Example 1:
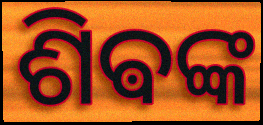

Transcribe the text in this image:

ଶିଵଙ୍କ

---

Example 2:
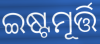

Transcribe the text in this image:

ଇଷ୍ଟମୂର୍ତ୍ତି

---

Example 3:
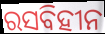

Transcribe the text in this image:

ରସବିହୀନ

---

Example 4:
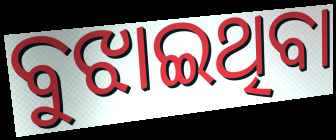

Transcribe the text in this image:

ବୁଝାଇଥିବା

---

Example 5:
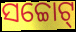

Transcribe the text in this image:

ସଚ୍ଚୋଟ୍